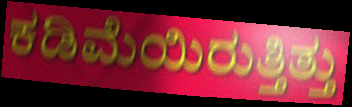
ಕಡಿಮೆಯಿರುತ್ತಿತ್ತು